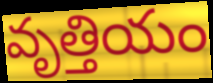
వృత్తియం